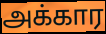
அக்கார